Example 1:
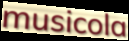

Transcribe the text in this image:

musicola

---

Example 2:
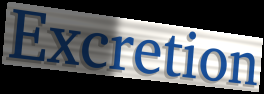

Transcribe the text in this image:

Excretion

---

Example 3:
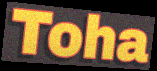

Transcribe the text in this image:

Toha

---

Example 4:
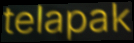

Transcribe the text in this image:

telapak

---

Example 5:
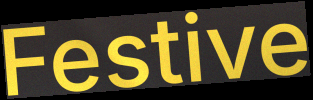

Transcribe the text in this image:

Festive